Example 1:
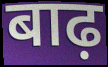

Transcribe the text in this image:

बाढ़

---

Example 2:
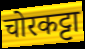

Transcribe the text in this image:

चोरकट्टा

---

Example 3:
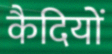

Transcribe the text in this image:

कैदियों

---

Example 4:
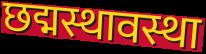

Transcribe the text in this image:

छद्मस्थावस्था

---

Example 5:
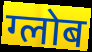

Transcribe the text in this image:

ग्लोब